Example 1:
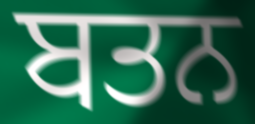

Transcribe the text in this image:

ਬਤਨ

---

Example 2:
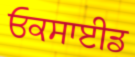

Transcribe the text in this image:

ਓਕਸਾਈਡ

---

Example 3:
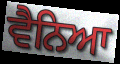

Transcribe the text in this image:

ਵੈਨਿਆ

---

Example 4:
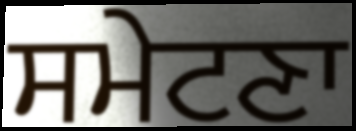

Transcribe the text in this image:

ਸਮੇਟਣਾ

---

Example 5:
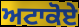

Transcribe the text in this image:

ਅਟਾਕੋਏ